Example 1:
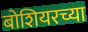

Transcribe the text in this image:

बोशियरच्या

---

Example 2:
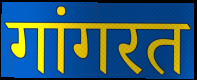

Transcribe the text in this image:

गांगरत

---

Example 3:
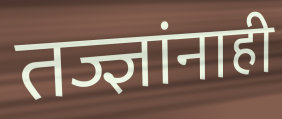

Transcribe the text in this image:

तज्ज्ञांनाही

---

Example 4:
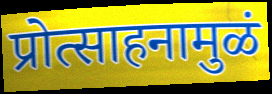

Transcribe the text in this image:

प्रोत्साहनामुळं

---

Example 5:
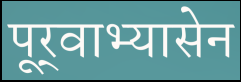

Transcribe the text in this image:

पूर्वाभ्यासेन